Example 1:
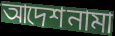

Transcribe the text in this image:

আদেশনামা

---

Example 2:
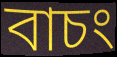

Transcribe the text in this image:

বাচং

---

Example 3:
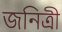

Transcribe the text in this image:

জনিত্রী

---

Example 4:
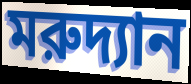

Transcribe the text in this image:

মরুদ্যান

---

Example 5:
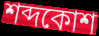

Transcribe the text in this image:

শব্দকোশ